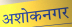
अशोकनगर